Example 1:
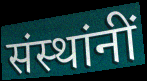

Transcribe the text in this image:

संस्थांनीं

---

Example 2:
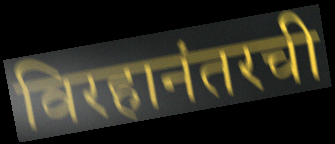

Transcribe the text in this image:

विरहानंतरची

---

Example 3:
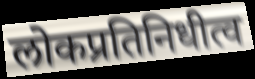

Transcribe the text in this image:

लोकप्रतिनिधीत्व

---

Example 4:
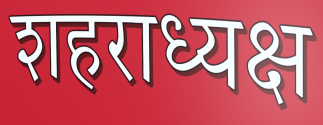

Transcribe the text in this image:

शहराध्यक्ष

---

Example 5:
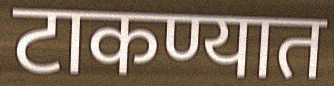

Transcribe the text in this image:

टाकण्यात